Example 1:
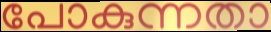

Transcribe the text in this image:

പോകുന്നതാ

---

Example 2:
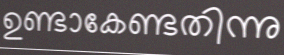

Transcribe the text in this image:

ഉണ്ടാകേണ്ടതിന്നു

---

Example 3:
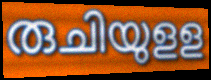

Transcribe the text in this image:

രുചിയുളള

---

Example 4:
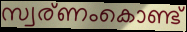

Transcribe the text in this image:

സ്വര്ണംകൊണ്ട്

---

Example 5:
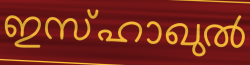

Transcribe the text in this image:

ഇസ്ഹാഖുൽ